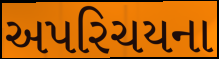
અપરિચયના